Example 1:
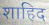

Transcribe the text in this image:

शाहिद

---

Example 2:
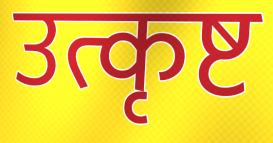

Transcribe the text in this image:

उत्कृष्ट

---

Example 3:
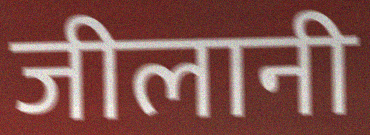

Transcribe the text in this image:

जीलानी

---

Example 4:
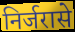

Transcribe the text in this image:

निर्जरासे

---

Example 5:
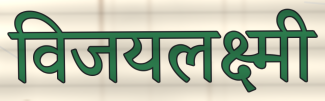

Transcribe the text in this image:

विजयलक्ष्मी